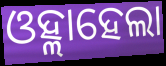
ଓହ୍ଲାହେଲା